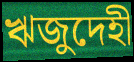
ঋজুদেহী